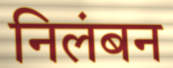
निलंबन